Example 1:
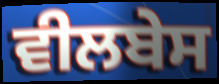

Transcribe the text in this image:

ਵੀਲਬੇਸ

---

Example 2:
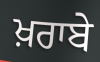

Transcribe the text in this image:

ਖ਼ਰਾਬੇ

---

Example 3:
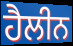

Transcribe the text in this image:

ਹੈਲੀਨ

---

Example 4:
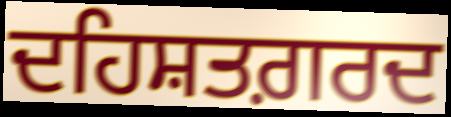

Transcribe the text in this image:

ਦਹਿਸ਼ਤਗ਼ਰਦ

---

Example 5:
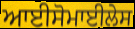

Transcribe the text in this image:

ਆਈਸੋਮਾਈਲੇਸ